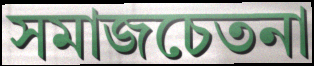
সমাজচেতনা